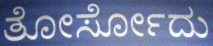
ತೋರ್ಸೋದು